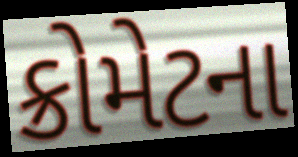
ક્રોમેટના